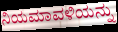
ನಿಯಮಾವಳಿಯನ್ನು